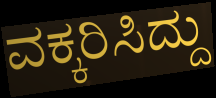
ವಕ್ಕರಿಸಿದ್ದು